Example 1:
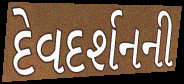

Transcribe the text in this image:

દેવદર્શનની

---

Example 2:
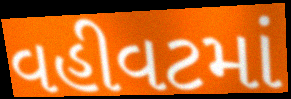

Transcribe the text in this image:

વહીવટમાં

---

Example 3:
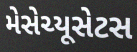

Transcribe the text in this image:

મેસેચ્યૂસેટસ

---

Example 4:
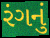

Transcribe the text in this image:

રંગનું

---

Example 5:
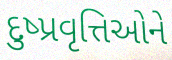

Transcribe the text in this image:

દુષ્પ્રવૃત્તિઓને